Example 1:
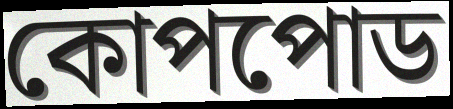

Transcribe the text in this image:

কোপপোড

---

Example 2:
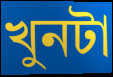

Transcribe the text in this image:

খুনটা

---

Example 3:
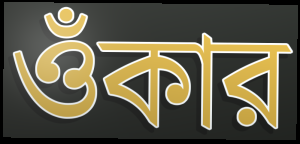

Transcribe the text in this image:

ওঁকার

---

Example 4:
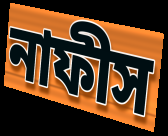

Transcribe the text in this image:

নাফীস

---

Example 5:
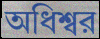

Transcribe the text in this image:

অধিশ্বর